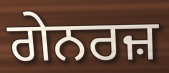
ਗੇਨਰਜ਼